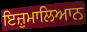
ਇਜ਼ੁਮਾਲਿਆਨ